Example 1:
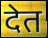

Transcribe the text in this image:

देत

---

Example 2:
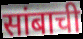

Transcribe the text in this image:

सांबाची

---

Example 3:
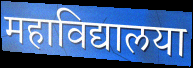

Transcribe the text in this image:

महाविद्यालया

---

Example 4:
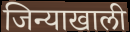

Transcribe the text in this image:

जिन्याखाली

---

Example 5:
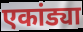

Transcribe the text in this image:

एकांड्या